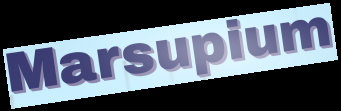
Marsupium